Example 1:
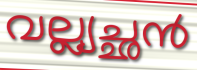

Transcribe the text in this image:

വല്ല്യച്ഛൻ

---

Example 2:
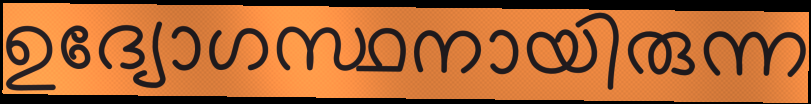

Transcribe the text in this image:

ഉദ്യോഗസ്ഥനായിരുന്ന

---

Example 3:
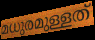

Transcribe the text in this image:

മധുരമുള്ളത്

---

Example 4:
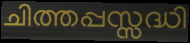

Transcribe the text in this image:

ചിത്തപ്പസ്സദ്ധി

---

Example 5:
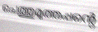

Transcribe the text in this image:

ചെത്തുമുത്തപ്പന്റെ